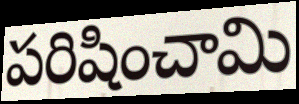
పరిషించామి